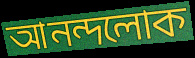
আনন্দলোক